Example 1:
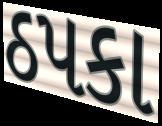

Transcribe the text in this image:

ઠપકા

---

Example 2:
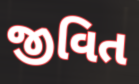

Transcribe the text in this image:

જીવિત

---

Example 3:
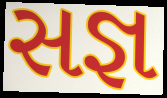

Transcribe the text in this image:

સજ્ઞ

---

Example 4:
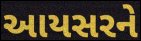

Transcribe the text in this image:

આયસરને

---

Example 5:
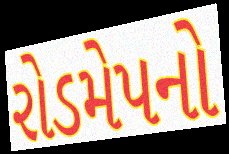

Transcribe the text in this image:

રોડમેપનો